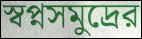
স্বপ্নসমুদ্রের